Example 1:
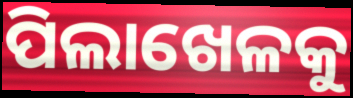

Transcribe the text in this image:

ପିଲାଖେଳକୁ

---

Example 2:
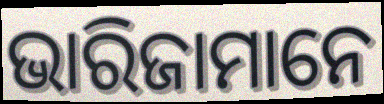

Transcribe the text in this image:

ଭାରିଜାମାନେ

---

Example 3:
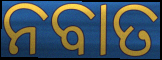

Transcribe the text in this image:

ନବାତ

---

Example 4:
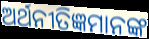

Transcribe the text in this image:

ଅର୍ଥନୀତିଜ୍ଞମାନଙ୍କ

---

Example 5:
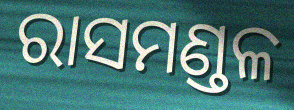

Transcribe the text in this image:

ରାସମଣ୍ଡଳ